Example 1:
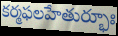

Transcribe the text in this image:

కర్మఫలహేతుర్భూః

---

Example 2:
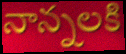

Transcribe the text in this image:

నాన్నలకి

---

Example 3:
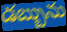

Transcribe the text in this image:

డబ్బును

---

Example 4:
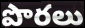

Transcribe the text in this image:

పొరలు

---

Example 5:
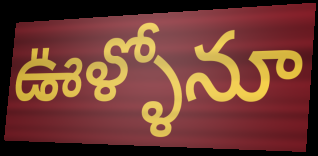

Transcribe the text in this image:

ఊళ్ళోనూ